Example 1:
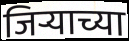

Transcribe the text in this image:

जिऱ्याच्या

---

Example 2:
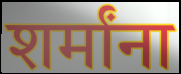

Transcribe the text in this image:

शर्मांना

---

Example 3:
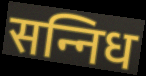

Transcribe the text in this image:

सन्निध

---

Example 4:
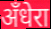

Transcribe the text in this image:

अँधेरा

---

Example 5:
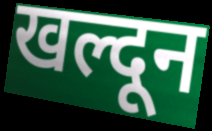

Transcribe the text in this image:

खल्दून